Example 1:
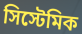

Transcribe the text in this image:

সিস্টেমিক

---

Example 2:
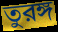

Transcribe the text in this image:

তুরঙ্গ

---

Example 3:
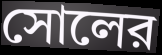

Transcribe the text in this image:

সোলের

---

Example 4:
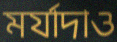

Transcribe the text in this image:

মর্যাদাও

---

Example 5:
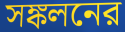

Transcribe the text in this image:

সঙ্কলনের